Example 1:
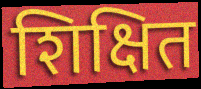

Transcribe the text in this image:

शिक्षित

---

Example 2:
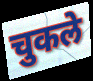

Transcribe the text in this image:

चुकले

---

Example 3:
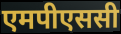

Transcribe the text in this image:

एमपीएससी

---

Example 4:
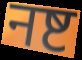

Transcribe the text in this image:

नष्ट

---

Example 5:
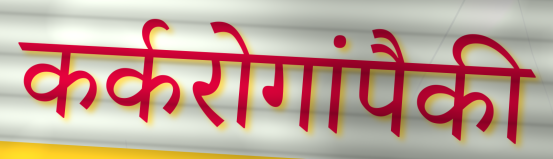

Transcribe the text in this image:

कर्करोगांपैकी